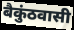
बैकुंठवासी